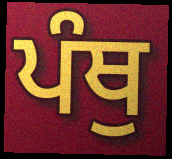
ਪੰਥੁ